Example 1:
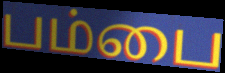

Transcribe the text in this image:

பம்பை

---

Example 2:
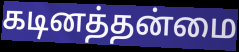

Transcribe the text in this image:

கடினத்தன்மை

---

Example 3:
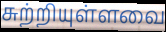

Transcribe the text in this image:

சுற்றியுள்ளவை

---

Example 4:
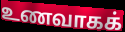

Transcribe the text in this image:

உணவாகக்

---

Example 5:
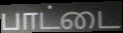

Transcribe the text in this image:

பாட்டை